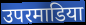
उपरमाडिया